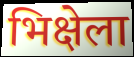
भिक्षेला